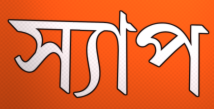
স্যাপ